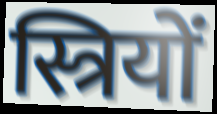
स्त्रियों